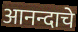
आनन्दाचे